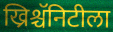
ख्रिश्चॅनिटीला